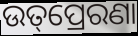
ଉତ୍‌ପ୍ରେରଣା